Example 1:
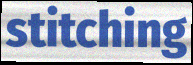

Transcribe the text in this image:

stitching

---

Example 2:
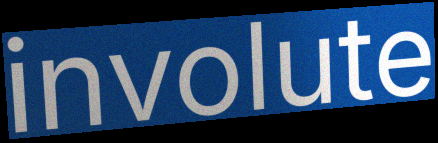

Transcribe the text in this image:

involute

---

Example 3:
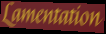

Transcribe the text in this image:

Lamentation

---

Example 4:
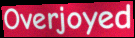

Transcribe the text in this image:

Overjoyed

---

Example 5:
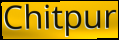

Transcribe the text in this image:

Chitpur